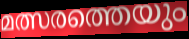
മത്സരത്തെയും